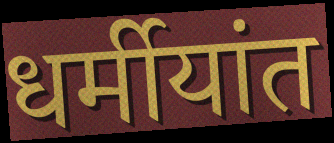
धर्मीयांत